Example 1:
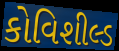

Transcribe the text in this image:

કોવિશીલ્ડ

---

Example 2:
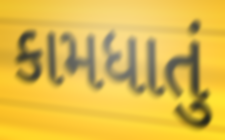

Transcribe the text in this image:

કામધાતું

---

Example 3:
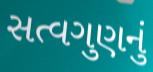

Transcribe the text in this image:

સત્વગુણનું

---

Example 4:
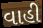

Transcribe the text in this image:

વાહી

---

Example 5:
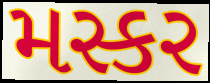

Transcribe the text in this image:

મસ્કર